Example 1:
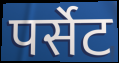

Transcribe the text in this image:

पर्सेट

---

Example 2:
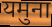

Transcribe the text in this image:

यमुना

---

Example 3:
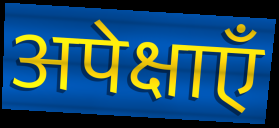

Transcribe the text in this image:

अपेक्षाएँ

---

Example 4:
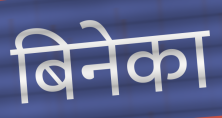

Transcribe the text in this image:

बिनेका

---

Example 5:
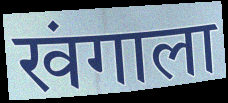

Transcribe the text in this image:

खंगाला